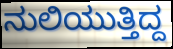
ನುಲಿಯುತ್ತಿದ್ದ